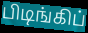
பிடிங்கிப்